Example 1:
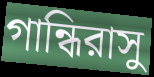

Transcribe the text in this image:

গান্ধিরাসু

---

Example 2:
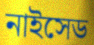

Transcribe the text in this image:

নাইসেড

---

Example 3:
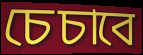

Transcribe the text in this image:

চেচাবে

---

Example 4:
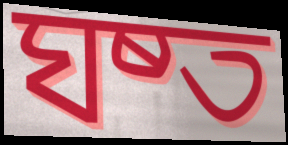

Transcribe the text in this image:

ঘষ্ত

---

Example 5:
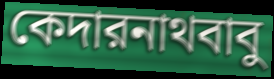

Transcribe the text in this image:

কেদারনাথবাবু